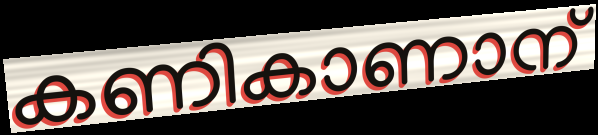
കണികാണാന്